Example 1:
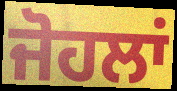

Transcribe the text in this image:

ਜੋਹਲਾਂ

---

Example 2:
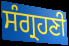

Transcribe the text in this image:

ਸੰਗ੍ਰਹਣੀ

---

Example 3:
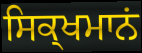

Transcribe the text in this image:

ਸਿਕ੍ਖਮਾਨਂ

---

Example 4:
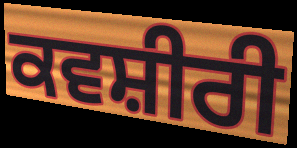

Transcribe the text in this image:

ਕਵਸ਼ੀਰੀ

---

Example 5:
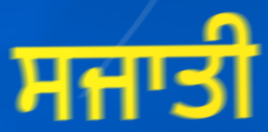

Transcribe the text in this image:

ਸਜਾਤੀ